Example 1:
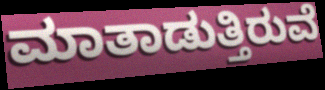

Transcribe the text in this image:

ಮಾತಾಡುತ್ತಿರುವೆ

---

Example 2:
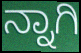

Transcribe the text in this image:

ನ್ನಾಗಿ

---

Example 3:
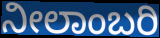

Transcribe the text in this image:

ನೀಲಾಂಬರಿ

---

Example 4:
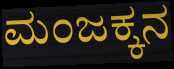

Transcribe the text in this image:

ಮಂಜಕ್ಕನ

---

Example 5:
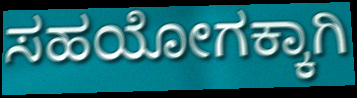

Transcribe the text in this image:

ಸಹಯೋಗಕ್ಕಾಗಿ